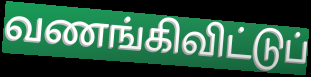
வணங்கிவிட்டுப்